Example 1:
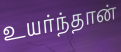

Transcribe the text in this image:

உயர்ந்தான்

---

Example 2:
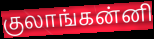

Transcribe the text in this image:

குலாங்கன்னி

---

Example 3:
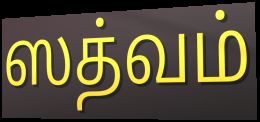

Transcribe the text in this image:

ஸத்வம்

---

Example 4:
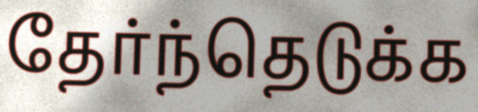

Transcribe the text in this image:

தேர்ந்தெடுக்க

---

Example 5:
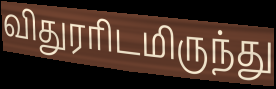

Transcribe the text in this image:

விதுரரிடமிருந்து